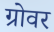
ग्रोवर